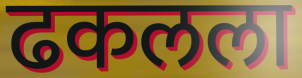
ढकलला